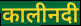
कालीनदी